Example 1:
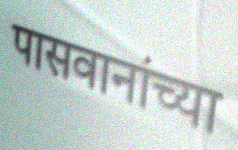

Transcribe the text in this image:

पासवानांच्या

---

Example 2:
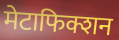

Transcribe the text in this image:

मेटाफिक्शन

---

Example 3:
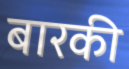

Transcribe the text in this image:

बारकी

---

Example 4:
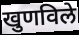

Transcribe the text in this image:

खुणविले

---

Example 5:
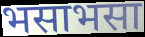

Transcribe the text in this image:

भसाभसा